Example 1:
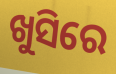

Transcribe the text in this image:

ଖୁସିରେ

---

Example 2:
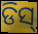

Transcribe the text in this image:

ଡିସ୍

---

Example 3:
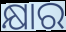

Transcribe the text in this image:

କ୍ଷାର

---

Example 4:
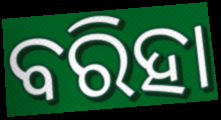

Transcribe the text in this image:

ବରିହା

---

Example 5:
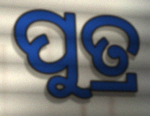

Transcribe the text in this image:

ପୁତ୍ର